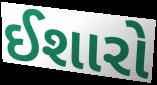
ઈશારો